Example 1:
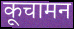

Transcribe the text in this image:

कूचामन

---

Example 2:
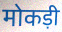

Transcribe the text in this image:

मोकड़ी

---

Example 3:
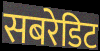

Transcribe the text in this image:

सबरेडिट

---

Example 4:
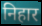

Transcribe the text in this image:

निहार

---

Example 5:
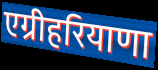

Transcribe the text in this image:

एग्रीहरियाणा